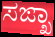
ಸಙ್ಖಾ